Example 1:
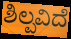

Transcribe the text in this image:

ಶಿಲ್ಪವಿದೆ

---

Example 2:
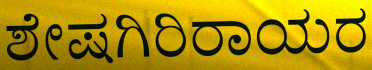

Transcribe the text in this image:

ಶೇಷಗಿರಿರಾಯರ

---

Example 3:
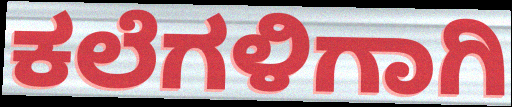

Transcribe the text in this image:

ಕಲೆಗಳಿಗಾಗಿ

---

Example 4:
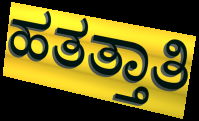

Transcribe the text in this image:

ಹತತ್ತಾತಿ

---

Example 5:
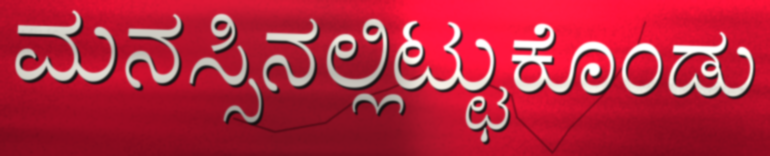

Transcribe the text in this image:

ಮನಸ್ಸಿನಲ್ಲಿಟ್ಟುಕೊಂಡು